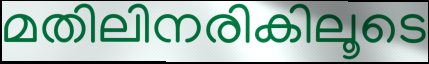
മതിലിനരികിലൂടെ